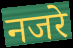
नजरे